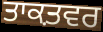
ਤਾਕ਼ਤਵਰ